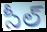
సీల్